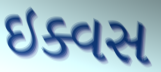
ઇક્વસ